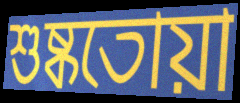
শুষ্কতোয়া